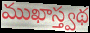
ముఖాస్త్వథ